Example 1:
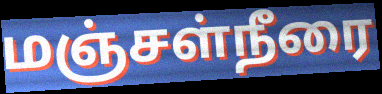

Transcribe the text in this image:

மஞ்சள்நீரை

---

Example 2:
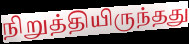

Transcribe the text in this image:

நிறுத்தியிருந்தது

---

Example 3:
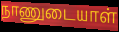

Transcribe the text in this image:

நாணுடையாள்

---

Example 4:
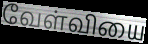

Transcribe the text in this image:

வேள்வியை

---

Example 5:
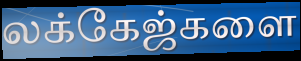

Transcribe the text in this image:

லக்கேஜ்களை